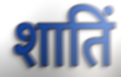
शातिं